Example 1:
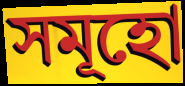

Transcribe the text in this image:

সমূহো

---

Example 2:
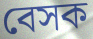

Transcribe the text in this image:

বেসক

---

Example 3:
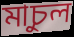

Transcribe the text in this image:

মাচুল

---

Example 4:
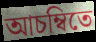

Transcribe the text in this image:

আচম্বিতে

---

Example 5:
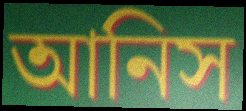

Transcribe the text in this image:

আনিস